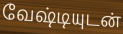
வேஷ்டியுடன்